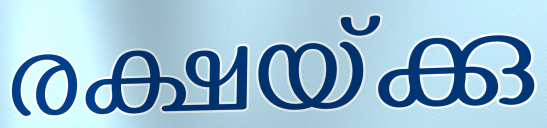
രക്ഷയ്‌ക്കു